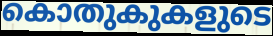
കൊതുകുകളുടെ